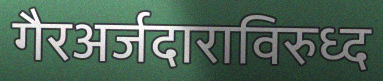
गैरअर्जदाराविरुध्द